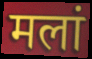
मलां